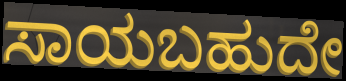
ಸಾಯಬಹುದೇ